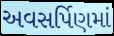
અવસર્પિણમાં